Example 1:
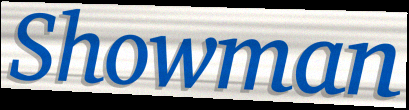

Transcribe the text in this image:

Showman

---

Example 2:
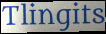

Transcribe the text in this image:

Tlingits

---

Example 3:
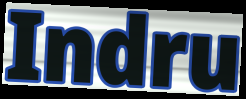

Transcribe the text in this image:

Indru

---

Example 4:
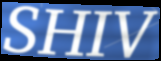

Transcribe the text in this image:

SHIV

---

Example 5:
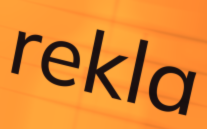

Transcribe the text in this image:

rekla